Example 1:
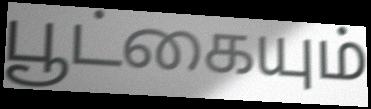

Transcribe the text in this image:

பூட்கையும்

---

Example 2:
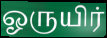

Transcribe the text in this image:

ஓருயிர்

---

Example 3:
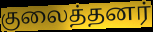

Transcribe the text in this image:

குலைத்தனர்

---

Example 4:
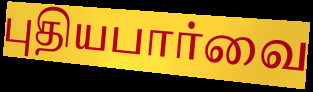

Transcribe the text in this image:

புதியபார்வை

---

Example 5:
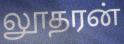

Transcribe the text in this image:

லூதரன்